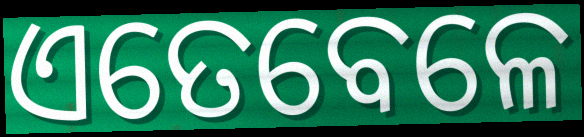
ଏତେବେଳେ